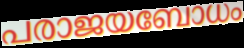
പരാജയബോധം